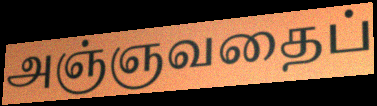
அஞ்ஞவதைப்